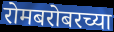
रोमबरोबरच्या